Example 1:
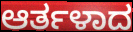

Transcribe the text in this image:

ಆರ್ತಳಾದ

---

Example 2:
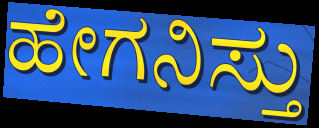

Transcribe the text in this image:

ಹೇಗನಿಸ್ತು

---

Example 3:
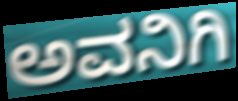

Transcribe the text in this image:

ಅವನಿಗಿ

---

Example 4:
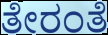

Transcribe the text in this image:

ತೇರಂತೆ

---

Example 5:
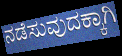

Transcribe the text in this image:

ನಡೆಸುವುದಕ್ಕಾಗಿ